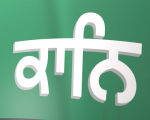
ਕਾਨਿ